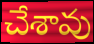
చేశావు